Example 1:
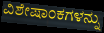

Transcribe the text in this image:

ವಿಶೇಷಾಂಕಗಳನ್ನು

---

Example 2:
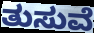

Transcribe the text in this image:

ತುಸುವೆ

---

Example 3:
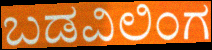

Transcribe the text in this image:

ಬಡವಿಲಿಂಗ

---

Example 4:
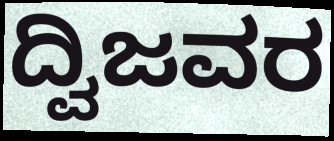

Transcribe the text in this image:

ದ್ವಿಜವರ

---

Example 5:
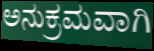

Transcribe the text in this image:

ಅನುಕ್ರಮವಾಗಿ